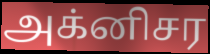
அக்னிசர